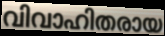
വിവാഹിതരായ